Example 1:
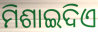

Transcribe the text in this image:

ମିଶାଇଦିଏ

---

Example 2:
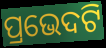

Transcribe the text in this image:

ପ୍ରଭେଦଟି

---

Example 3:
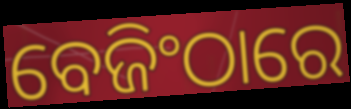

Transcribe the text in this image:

ବେଜିଂଠାରେ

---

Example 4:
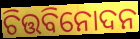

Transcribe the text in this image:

ଚିତ୍ତବିନୋଦନ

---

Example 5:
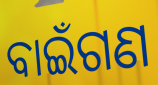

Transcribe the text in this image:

ବାଇଁଗଣ